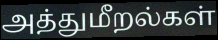
அத்துமீறல்கள்